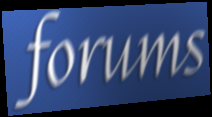
forums